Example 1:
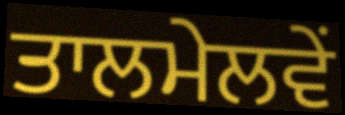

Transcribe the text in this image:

ਤਾਲਮੇਲਵੇਂ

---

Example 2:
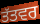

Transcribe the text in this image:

ਤੱਤਵਰ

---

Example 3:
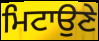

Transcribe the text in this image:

ਮਿਟਾਉਣੇ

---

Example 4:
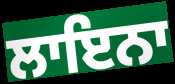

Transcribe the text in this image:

ਲਾਇਨਾ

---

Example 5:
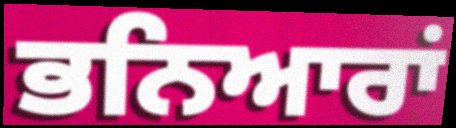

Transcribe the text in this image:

ਭਨਿਆਰਾਂ